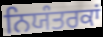
ਨਿਯੰਤਰਕਾਂ